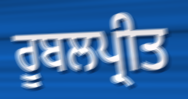
ਰੂਬਲਪ੍ਰੀਤ